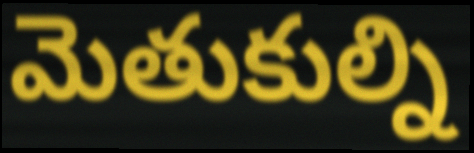
మెతుకుల్ని